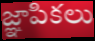
జ్ఞాపికలు